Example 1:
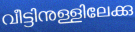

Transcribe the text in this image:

വീട്ടിനുള്ളിലേക്കു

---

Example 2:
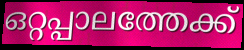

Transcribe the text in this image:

ഒറ്റപ്പാലത്തേക്ക്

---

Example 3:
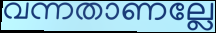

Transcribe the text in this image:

വന്നതാണല്ലേ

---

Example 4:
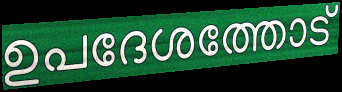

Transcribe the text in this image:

ഉപദേശത്തോട്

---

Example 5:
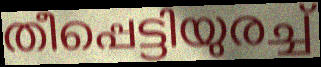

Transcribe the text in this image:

തീപ്പെട്ടിയുരച്ച്